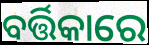
ବର୍ତ୍ତିକାରେ